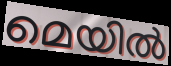
മെയിൽ